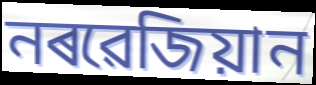
নৰৱেজিয়ান